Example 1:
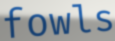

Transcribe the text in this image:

fowls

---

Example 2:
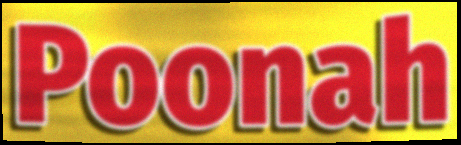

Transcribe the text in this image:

Poonah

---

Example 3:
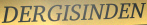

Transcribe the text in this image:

DERGISINDEN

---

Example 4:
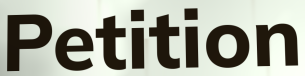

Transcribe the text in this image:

Petition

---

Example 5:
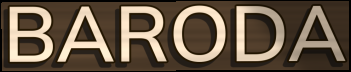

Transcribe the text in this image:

BARODA